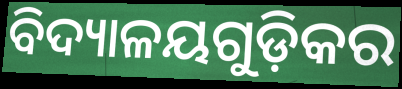
ବିଦ୍ୟାଳୟଗୁଡ଼ିକର